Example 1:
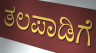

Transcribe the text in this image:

ತಲಪಾಡಿಗೆ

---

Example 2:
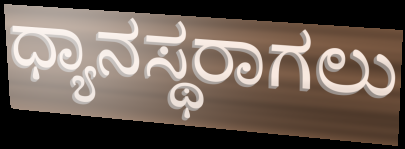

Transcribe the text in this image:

ಧ್ಯಾನಸ್ಥರಾಗಲು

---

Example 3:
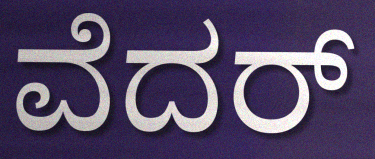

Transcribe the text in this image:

ವೆದರ್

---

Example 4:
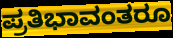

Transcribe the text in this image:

ಪ್ರತಿಭಾವಂತರೂ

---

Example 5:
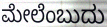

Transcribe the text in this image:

ಮೇಲೆಂಬುದು